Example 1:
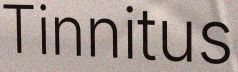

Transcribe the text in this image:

Tinnitus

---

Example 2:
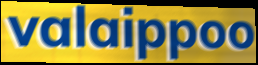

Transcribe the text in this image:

valaippoo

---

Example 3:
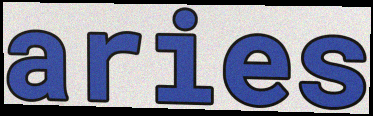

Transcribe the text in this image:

aries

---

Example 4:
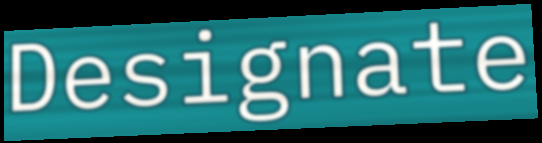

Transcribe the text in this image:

Designate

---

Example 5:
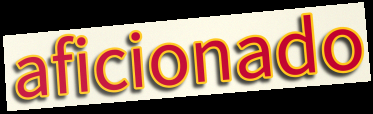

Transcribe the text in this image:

aficionado